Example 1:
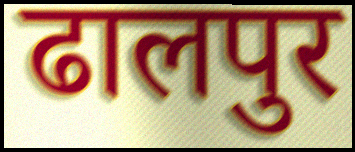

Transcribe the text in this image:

ढालपुर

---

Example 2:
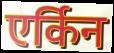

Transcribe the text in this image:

एर्किन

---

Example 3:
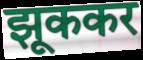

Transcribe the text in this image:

झूककर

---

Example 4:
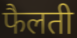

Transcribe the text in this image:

फैलती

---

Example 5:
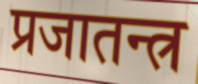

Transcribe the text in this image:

प्रजातन्त्र